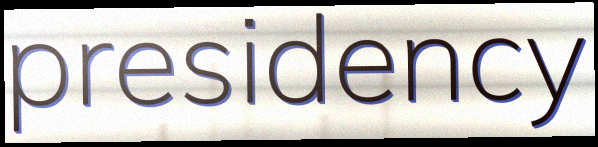
presidency